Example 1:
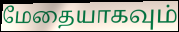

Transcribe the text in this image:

மேதையாகவும்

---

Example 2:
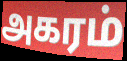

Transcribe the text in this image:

அகரம்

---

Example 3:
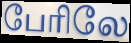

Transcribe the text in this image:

பேரிலே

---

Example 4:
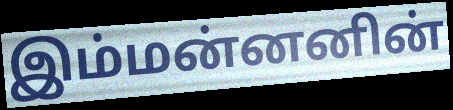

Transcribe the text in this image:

இம்மன்னனின்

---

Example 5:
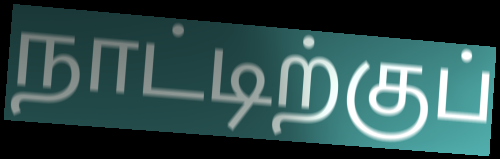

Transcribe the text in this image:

நாட்டிற்குப்